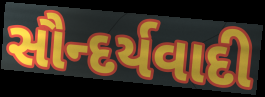
સૌન્દર્યવાદી